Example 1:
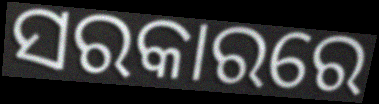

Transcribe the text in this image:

ସରକାରରେ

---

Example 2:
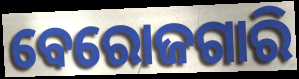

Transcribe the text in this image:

ବେରୋଜଗାରି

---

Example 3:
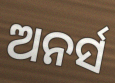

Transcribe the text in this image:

ଅନର୍ସ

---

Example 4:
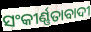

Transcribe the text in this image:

ସଂକୀର୍ଣ୍ଣତାବାଦୀ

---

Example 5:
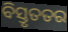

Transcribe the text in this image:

ବିସ୍ତୃତତର